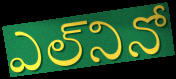
ఎల్‌నినో